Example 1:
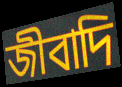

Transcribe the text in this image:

জীবাদি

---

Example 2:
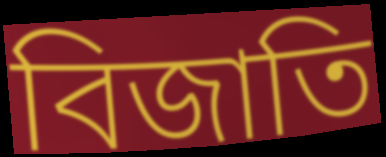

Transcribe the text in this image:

বিজাতি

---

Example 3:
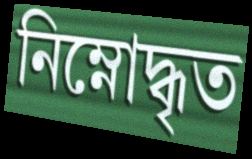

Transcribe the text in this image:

নিম্নোদ্ধৃত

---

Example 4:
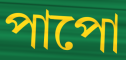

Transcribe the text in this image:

পাপো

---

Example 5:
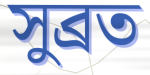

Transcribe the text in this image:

সুব্রত